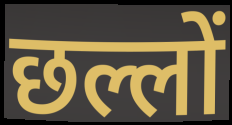
छल्लों